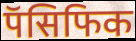
पॅसिफिक